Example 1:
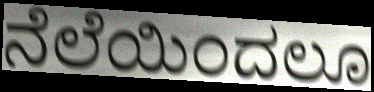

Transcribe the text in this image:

ನೆಲೆಯಿಂದಲೂ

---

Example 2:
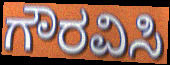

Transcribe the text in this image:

ಗೌರವಿಸಿ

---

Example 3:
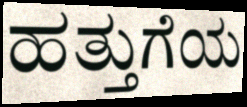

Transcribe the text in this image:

ಹತ್ತುಗೆಯ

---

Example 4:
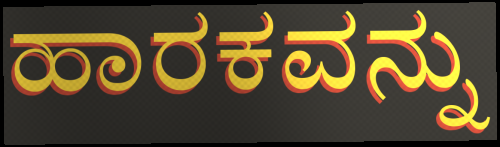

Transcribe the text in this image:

ಹಾರಕವನ್ನು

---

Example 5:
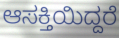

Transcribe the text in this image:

ಆಸಕ್ತಿಯಿದ್ದರೆ